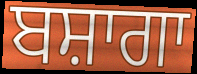
ਬਸ਼ਾਗਾ